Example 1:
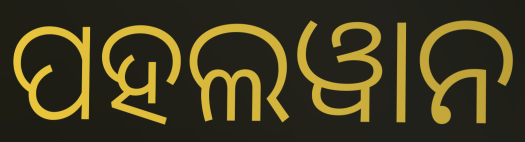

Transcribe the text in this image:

ପହଲୱାନ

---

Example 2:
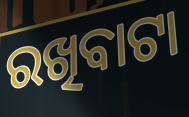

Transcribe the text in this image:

ରଖିବାଟା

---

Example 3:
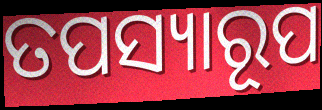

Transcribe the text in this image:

ତପସ୍ୟାରୂପ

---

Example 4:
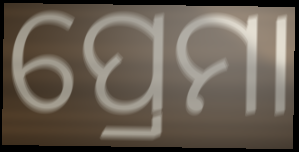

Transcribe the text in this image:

ପ୍ରେମା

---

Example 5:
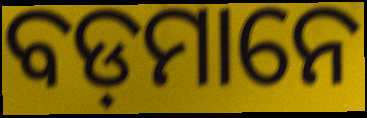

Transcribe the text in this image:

ବଡ଼ମାନେ